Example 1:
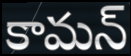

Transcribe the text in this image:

కామన్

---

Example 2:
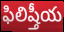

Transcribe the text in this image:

ఫిలిష్తీయ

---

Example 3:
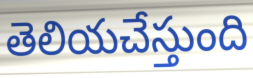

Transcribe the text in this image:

తెలియచేస్తుంది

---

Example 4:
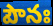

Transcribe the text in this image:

పౌనః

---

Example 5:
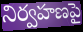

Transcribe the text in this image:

నిర్వహణపై